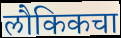
लौकिकचा